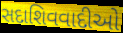
સદાશિવવાદીઓ